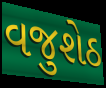
વજુશેઠ